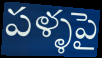
పళ్ళపై